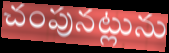
చంపునట్లును